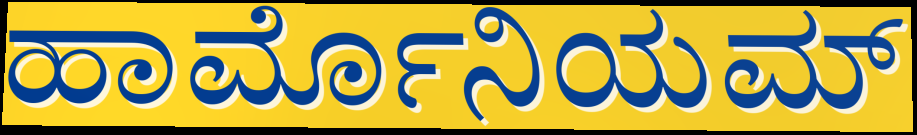
ಹಾರ್ಮೊನಿಯಮ್